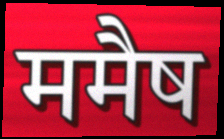
ममैष